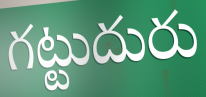
గట్టుదురు